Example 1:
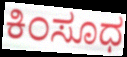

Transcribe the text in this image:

ಕಿಂಸೂಧ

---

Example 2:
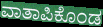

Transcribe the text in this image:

ವಾತಾಪಿಕೊಂಡ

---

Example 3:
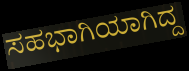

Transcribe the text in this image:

ಸಹಭಾಗಿಯಾಗಿದ್ದ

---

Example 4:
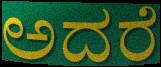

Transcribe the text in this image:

ಅದರೆ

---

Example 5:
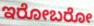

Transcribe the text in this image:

ಇರೋಬರೋ